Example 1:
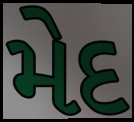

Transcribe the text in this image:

મેદ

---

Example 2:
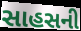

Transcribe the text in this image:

સાહસની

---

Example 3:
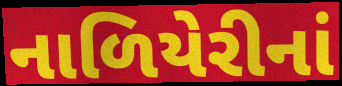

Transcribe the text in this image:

નાળિયેરીનાં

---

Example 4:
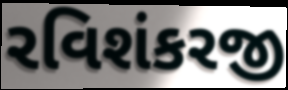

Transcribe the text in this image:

રવિશંકરજી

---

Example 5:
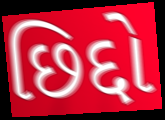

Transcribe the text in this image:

છિદ્દો